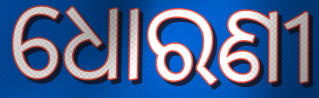
ଧୋରଣୀ